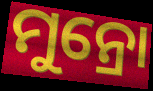
ମୁନ୍ରୋ